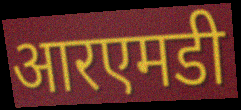
आरएमडी